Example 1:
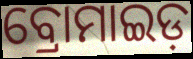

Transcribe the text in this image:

ବ୍ରୋମାଇଡ଼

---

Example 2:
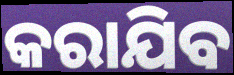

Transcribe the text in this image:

କରାଯିବ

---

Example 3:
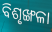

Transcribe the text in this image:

ବିଶୃଙ୍ଖଳା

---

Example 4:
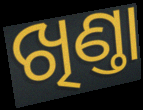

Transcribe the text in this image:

ଖିଣ୍ତା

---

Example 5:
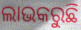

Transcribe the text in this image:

ଲାଭକରୁଛି